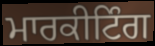
ਮਾਰਕੀਟਿੰਗ